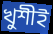
খুশীই